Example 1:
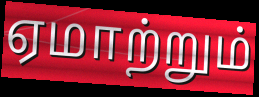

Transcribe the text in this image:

ஏமாற்றும்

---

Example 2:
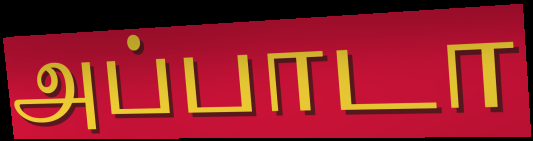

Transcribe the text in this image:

அப்பாடா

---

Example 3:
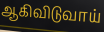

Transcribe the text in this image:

ஆகிவிடுவாய்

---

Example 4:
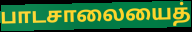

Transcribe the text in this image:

பாடசாலையைத்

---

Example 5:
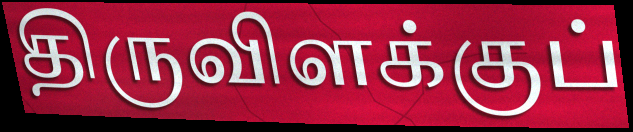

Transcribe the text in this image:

திருவிளக்குப்